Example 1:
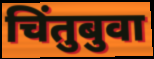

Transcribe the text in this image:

चिंतुबुवा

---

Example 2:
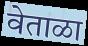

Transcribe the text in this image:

वेताळा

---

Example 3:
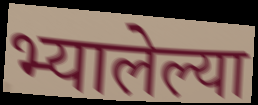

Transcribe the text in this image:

भ्यालेल्या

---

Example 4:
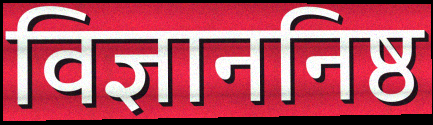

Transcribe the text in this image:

विज्ञाननिष्ठ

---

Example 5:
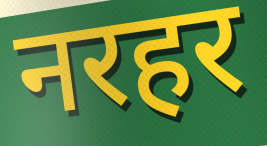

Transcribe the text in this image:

नरहर